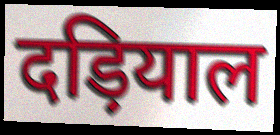
दड़ियाल